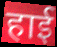
हाई